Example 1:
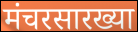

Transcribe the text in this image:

मंचरसारख्या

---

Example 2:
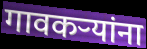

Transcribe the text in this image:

गावकऱ्यांना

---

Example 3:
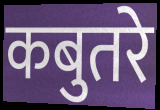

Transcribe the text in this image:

कबुतरे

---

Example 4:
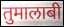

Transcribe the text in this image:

तुमालाबी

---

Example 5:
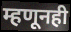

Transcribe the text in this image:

म्हणूनही